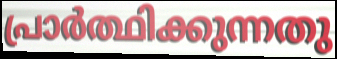
പ്രാർത്ഥിക്കുന്നതു